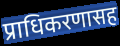
प्राधिकरणासह